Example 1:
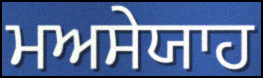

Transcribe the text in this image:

ਮਅਸੇਯਾਹ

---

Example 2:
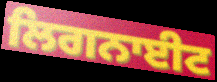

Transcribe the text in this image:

ਲਿਗਨਾਈਟ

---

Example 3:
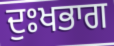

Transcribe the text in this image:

ਦੁਃਖਭਾਗ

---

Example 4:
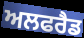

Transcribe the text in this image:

ਅਲਫਰੈਡ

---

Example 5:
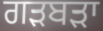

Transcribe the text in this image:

ਗੜਬੜਾ